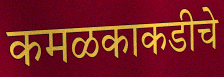
कमळकाकडीचे